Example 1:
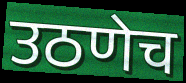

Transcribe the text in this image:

उठणेच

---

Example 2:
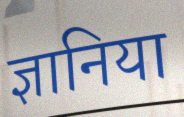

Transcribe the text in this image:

ज्ञानिया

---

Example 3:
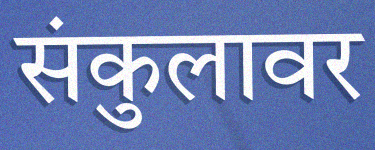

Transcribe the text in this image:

संकुलावर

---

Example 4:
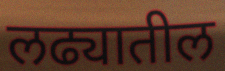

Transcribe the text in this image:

लढ्यातील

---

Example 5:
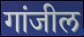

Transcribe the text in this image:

गांजील